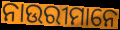
ନାଉରୀମାନେ